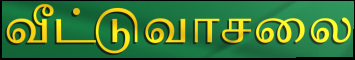
வீட்டுவாசலை